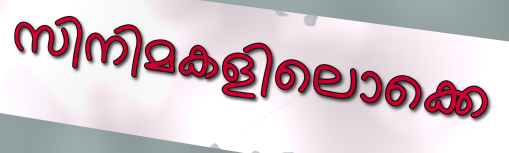
സിനിമകളിലൊക്കെ